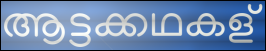
ആട്ടക്കഥകള്